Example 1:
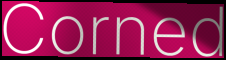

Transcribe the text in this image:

Corned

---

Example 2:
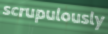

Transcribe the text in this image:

scrupulously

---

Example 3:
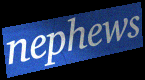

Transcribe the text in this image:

nephews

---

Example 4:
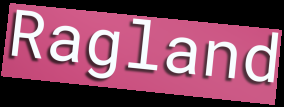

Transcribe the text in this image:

Ragland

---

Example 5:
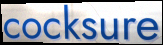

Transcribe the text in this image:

cocksure